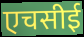
एचसीई